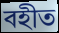
বহীত